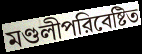
মণ্ডলীপরিবেষ্টিত